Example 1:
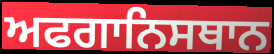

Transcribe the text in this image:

ਅਫਗਾਨਿਸਥਾਨ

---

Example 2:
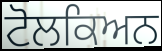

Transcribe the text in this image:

ਟੋਲਕਿਅਨ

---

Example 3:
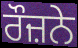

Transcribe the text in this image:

ਰੌਜ਼ਨੇ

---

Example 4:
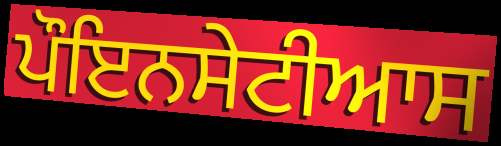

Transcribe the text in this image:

ਪੌਇਨਸੇਟੀਆਸ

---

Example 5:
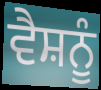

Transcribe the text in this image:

ਵੈਸ਼ਨੂੰ